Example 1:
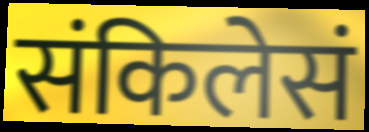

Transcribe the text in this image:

संकिलेसं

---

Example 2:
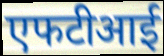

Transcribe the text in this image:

एफटीआई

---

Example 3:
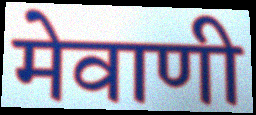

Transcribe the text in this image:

मेवाणी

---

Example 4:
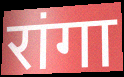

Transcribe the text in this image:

रांगा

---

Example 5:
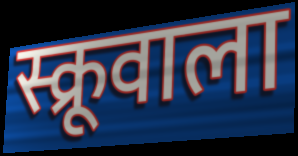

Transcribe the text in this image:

स्क्रूवाला